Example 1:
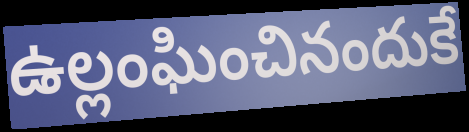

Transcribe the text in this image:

ఉల్లంఘించినందుకే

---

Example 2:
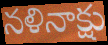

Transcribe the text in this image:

నళినాక్షు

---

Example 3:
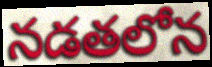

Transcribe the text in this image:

నడతలోన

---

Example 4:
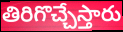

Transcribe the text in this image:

తిరిగొచ్చేస్తారు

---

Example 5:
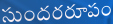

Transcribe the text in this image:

సుందరరూపం